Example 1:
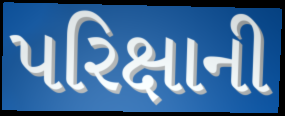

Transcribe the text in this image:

પરિક્ષાની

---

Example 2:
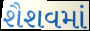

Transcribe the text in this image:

શૈશવમાં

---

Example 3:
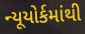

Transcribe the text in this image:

ન્યૂયોર્કમાંથી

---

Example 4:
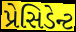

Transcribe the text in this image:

પ્રેસિડેન્ટ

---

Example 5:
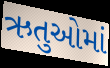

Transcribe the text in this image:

ઋતુઓમાં